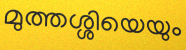
മുത്തശ്ശിയെയും